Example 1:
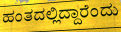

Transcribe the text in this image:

ಹಂತದಲ್ಲಿದ್ದಾರೆಂದು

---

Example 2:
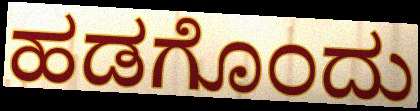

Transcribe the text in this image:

ಹಡಗೊಂದು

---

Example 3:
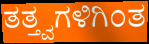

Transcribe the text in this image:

ತತ್ತ್ವಗಳಿಗಿಂತ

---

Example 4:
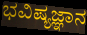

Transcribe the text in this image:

ಭವಿಷ್ಯಜ್ಞಾನ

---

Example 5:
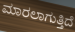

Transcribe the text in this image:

ಮಾರಲಾಗುತ್ತಿದೆ